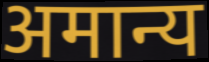
अमान्य